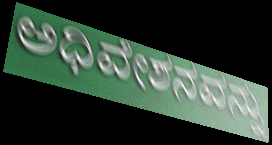
ಅಧಿವೇಶನವನ್ನು